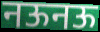
नऊनऊ